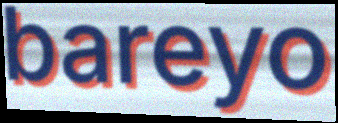
bareyo